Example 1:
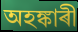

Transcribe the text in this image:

অহঙ্কাৰী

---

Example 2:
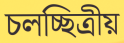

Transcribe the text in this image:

চলচ্ছিত্ৰীয়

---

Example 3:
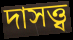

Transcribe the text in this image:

দাসত্ত্ব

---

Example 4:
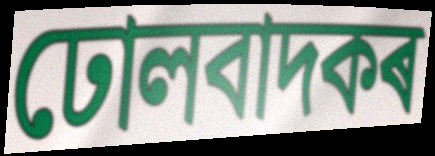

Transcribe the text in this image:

ঢোলবাদকৰ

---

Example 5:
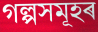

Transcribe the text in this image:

গল্পসমূহৰ